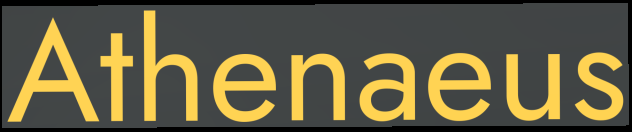
Athenaeus